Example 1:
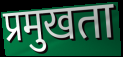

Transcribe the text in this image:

प्रमुखता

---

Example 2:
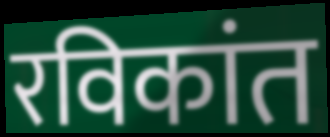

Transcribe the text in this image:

रविकांत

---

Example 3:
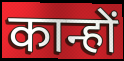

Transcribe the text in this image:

कान्हों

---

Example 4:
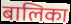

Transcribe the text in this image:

बालिका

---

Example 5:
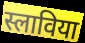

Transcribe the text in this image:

स्लाविया